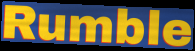
Rumble